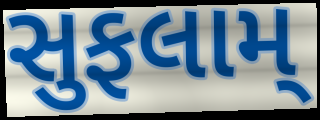
સુફલામ્